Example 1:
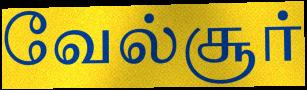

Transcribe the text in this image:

வேல்சூர்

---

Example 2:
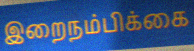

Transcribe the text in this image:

இறைநம்பிக்கை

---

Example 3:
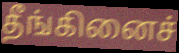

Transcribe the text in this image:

தீங்கினைச்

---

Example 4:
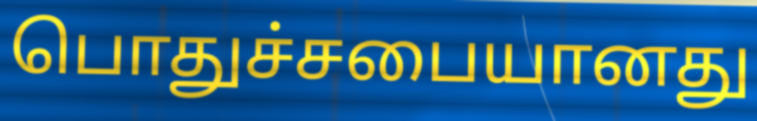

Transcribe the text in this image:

பொதுச்சபையானது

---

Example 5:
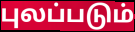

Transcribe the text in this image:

புலப்படும்